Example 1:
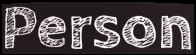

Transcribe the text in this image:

Person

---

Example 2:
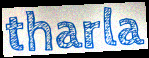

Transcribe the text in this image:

tharla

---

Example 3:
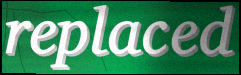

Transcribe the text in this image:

replaced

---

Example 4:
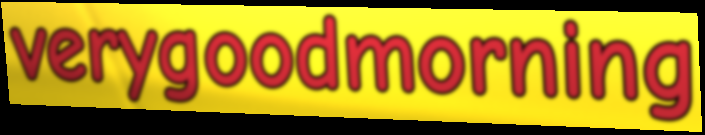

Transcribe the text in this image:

verygoodmorning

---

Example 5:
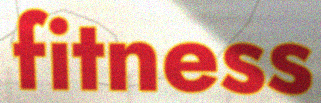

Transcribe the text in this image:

fitness